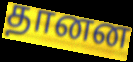
தானன